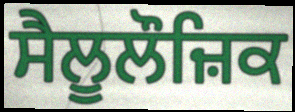
ਸੈਲੂਲੌਜ਼ਿਕ